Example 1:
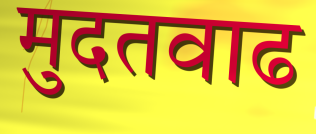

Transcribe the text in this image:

मुदतवाढ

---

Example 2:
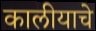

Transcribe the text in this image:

कालीयाचे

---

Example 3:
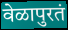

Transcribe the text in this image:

वेळापुरतं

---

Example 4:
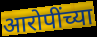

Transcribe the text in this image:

आरोपींच्या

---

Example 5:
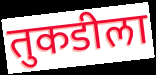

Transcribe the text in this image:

तुकडीला